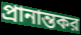
প্রানান্তকর